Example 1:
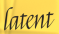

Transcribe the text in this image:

latent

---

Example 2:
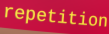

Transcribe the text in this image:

repetition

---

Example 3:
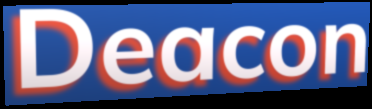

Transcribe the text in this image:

Deacon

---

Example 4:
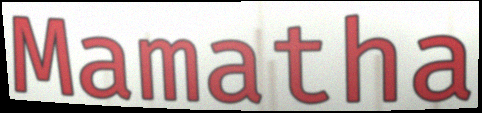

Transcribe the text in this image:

Mamatha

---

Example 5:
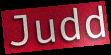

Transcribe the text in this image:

Judd